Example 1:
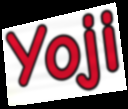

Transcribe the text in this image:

Yoji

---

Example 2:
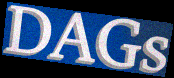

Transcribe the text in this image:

DAGs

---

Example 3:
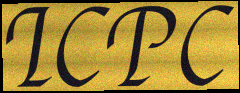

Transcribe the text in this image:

ICPC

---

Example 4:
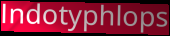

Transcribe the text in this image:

Indotyphlops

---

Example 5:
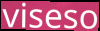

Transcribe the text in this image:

viseso